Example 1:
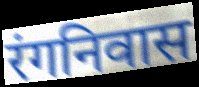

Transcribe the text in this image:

रंगनिवास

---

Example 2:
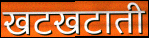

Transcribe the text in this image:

खटखटाती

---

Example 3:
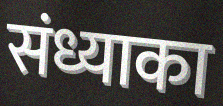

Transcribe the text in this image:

संध्याका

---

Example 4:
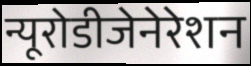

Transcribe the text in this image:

न्यूरोडीजेनेरेशन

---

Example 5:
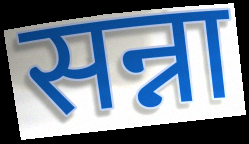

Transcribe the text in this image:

सन्ना